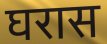
घरास